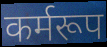
कर्मरूप